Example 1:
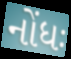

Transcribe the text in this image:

નોંધઃ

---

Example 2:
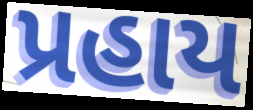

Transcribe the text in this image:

પ્રહાય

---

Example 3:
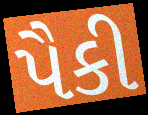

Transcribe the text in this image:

પૈકી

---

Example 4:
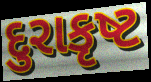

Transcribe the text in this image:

દુરાકૃષ્ટ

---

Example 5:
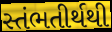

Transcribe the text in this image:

સ્તંભતીર્થથી